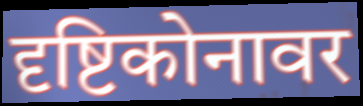
दृष्टिकोनावर